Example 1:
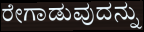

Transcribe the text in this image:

ರೇಗಾಡುವುದನ್ನು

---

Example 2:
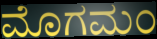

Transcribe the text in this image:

ಮೊಗಮಂ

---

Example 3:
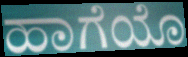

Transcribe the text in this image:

ಹಾಗೆಯೊ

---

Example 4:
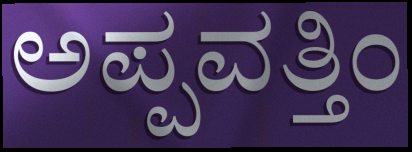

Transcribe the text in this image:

ಅಪ್ಪವತ್ತಿಂ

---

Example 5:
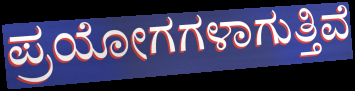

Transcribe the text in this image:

ಪ್ರಯೋಗಗಳಾಗುತ್ತಿವೆ